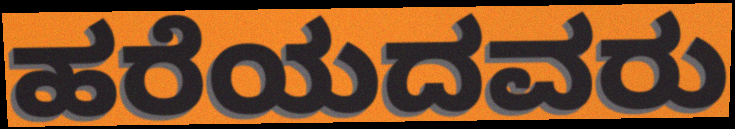
ಹರೆಯದವರು